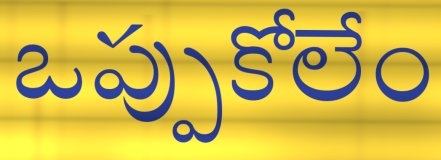
ఒప్పుకోలేం